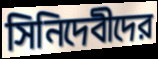
সিনিদেবীদের